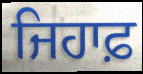
ਜਿਹਾਫ਼